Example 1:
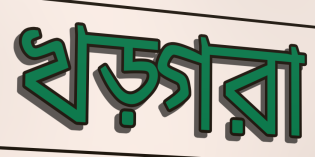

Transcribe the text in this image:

খড়্গরা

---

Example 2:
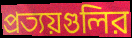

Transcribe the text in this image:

প্রত্যয়গুলির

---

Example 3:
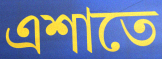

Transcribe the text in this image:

এশাতে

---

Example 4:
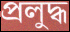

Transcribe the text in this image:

প্রলুদ্ধ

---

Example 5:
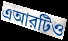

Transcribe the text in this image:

এআরটিও